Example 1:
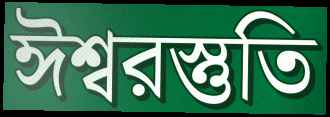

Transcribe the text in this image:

ঈশ্বরস্তুতি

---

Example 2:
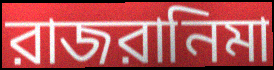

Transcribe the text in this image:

রাজরানিমা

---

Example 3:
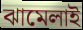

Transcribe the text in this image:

ঝামেলাই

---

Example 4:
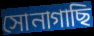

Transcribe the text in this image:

সোনাগাছি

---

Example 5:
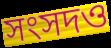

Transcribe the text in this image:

সংসদও